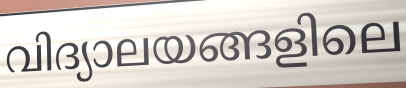
വിദ്യാലയങ്ങളിലെ